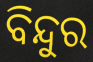
ବିନ୍ଦୁର